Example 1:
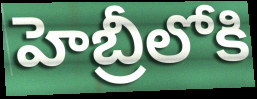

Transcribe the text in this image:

హెబ్రీలోకి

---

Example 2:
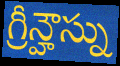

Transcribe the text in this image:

గ్రీన్హౌస్ను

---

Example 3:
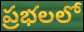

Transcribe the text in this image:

ప్రభలలో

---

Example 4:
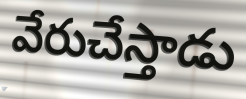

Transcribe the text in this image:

వేరుచేస్తాడు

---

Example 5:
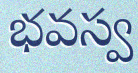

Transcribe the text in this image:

భవస్వ